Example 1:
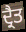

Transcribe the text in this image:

ਦ੍ਰੈਤ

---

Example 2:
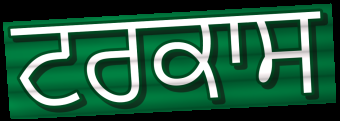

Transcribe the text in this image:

ਟਰਕਾਸ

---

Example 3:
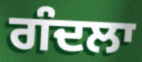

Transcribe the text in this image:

ਗੰਦਲਾ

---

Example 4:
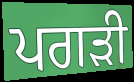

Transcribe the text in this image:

ਪਗੜੀ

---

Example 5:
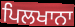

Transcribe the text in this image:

ਪਿਲਖਾਨਾ